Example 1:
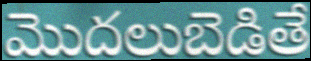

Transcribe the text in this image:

మొదలుబెడితే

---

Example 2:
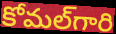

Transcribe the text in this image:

కోమల్‌గారి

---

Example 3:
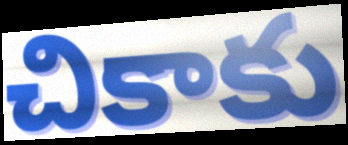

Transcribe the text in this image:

చికాకు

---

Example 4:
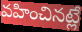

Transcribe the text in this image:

వహించినట్లే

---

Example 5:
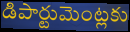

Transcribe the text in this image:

డిపార్టుమెంట్లకు